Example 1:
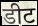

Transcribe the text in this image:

डीट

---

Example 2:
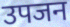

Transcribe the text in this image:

उपजन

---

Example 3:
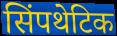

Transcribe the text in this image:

सिंपथेटिक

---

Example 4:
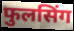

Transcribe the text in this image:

फुलसिंग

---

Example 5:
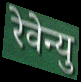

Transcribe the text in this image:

रेवेन्यु